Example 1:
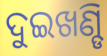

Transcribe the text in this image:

ଦୁଇଖଣ୍ଡି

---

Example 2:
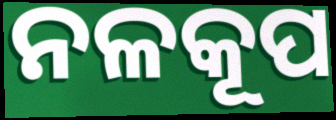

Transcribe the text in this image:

ନଳକୂପ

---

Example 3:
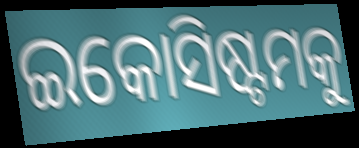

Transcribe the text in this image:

ଇକୋସିଷ୍ଟମକୁ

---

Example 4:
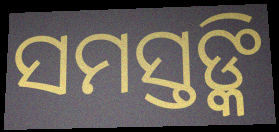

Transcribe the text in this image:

ସମସ୍ତଙ୍କି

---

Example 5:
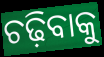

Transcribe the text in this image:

ଚଢ଼ିବାକୁ